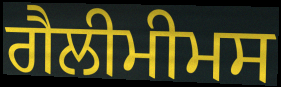
ਗੈਲੀਮੀਮਸ